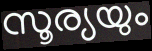
സൂര്യയും